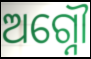
ଅଗ୍ନୌ